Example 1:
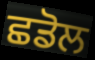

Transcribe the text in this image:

ਛਡੋਲ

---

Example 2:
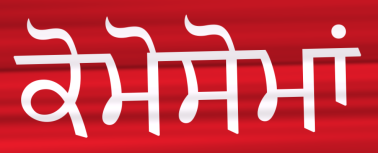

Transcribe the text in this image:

ਕੋਮੋਸੋਮਾਂ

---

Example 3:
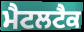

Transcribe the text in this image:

ਮੈਟਲਟੈਕ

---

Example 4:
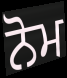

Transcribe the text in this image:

ਨੋਮ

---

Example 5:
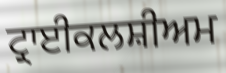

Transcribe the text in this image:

ਟ੍ਰਾਈਕਲਸ਼ੀਅਮ